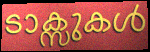
ടാക്സുകൾ